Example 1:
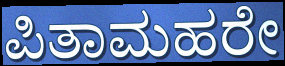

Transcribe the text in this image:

ಪಿತಾಮಹರೇ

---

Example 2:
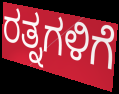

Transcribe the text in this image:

ರತ್ನಗಳಿಗೆ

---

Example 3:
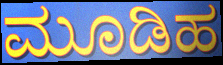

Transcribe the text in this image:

ಮೂಡಿಹ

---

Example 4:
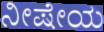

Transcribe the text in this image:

ನೀಷೇಯ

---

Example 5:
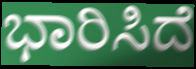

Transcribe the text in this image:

ಭಾರಿಸಿದೆ